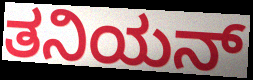
ತನಿಯನ್